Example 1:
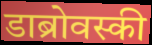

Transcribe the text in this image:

डाब्रोवस्की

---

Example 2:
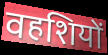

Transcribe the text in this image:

वहशियों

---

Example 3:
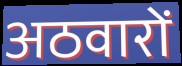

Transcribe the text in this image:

अठवारों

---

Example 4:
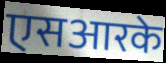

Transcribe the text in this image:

एसआरके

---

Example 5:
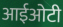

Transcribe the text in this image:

आईओटी